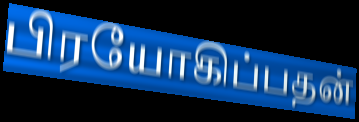
பிரயோகிப்பதன்